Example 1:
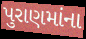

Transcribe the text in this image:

પુરાણમાંના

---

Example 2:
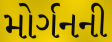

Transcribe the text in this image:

મોર્ગનની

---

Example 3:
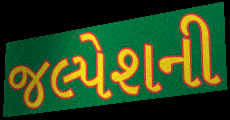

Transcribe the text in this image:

જલ્પેશની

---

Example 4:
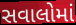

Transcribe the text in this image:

સવાલોમાં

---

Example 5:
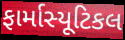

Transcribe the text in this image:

ફાર્માસ્યૂટિકલ